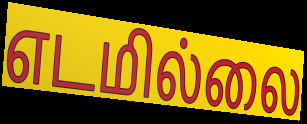
எடமில்லை